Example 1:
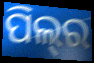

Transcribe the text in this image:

ପିଲ୍‌ର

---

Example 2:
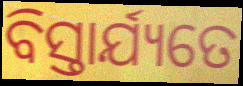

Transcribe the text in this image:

ବିସ୍ତାର୍ଯ୍ୟତେ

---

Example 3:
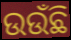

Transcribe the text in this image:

ଉଉଁଛି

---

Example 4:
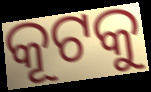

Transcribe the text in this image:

କୂଟକୁ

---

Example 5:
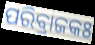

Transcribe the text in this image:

ପରିବ୍ରାଜକଃ